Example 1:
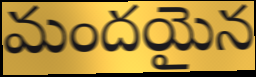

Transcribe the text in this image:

మందయైన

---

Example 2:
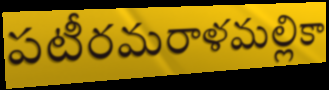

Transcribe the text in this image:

పటీరమరాళమల్లికా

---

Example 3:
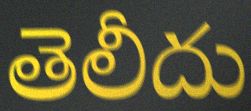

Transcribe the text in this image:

తెలీదు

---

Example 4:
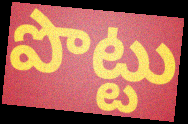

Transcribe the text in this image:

పొట్టు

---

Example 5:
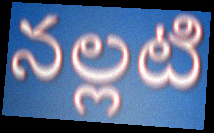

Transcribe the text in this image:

నల్లటి